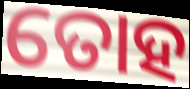
ତୋହ